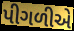
પીગળીએ